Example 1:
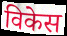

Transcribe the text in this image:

विकेस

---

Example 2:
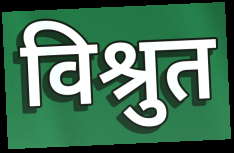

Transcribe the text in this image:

विश्रुत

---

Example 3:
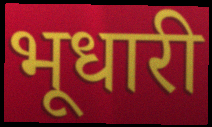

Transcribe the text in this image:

भूधारी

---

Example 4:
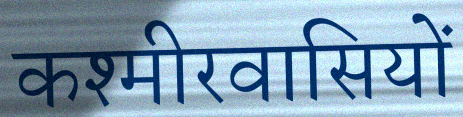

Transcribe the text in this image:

कश्मीरवासियों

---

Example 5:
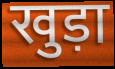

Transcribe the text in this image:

खुड़ा